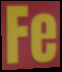
Fe